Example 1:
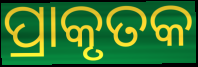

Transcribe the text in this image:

ପ୍ରାକୃତକ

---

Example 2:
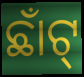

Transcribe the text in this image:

ଛାଁଟ୍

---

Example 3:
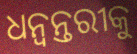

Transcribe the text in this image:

ଧନ୍ବନ୍ତରୀକୁ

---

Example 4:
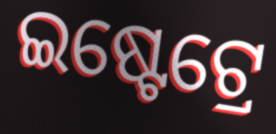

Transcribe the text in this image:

ଇଷ୍ଟେଟ୍ରେ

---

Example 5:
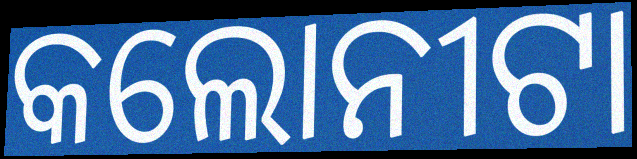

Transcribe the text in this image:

କଲୋନୀଟା